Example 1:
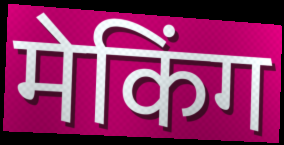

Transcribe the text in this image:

मेकिंग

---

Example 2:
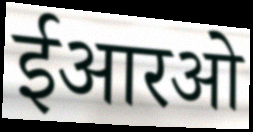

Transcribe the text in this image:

ईआरओ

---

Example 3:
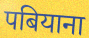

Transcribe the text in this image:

पबियाना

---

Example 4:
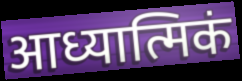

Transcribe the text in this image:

आध्यात्मिकं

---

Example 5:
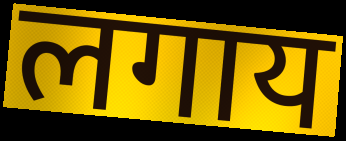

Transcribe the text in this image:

लगाय